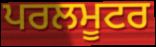
ਪਰਲਮੂਟਰ